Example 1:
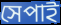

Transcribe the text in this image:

সেপাই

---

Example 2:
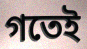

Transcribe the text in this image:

গতেই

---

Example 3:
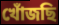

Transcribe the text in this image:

খোঁজছি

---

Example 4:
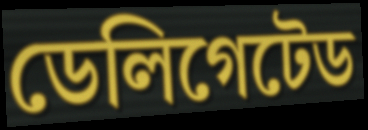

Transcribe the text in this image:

ডেলিগেটেড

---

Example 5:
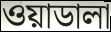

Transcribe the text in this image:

ওয়াডালা